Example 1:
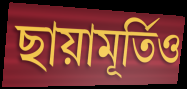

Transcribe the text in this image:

ছায়ামূর্তিও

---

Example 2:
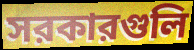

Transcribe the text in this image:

সরকারগুলি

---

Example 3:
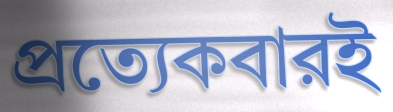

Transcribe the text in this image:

প্রত্যেকবারই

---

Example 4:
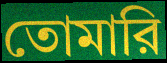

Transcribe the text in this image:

তোমারি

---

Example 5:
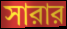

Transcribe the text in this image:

সারার